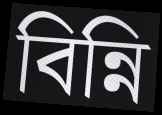
বিন্নি